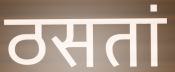
ठसतां